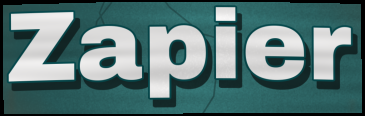
Zapier